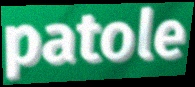
patole